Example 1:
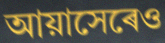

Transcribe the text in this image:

আয়াসেৰেও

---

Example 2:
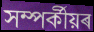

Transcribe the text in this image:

সম্পৰ্কীয়ৰ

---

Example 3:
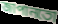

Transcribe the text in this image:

জাপানতো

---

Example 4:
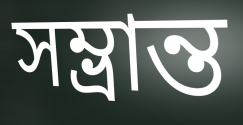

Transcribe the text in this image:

সম্ভ্ৰান্ত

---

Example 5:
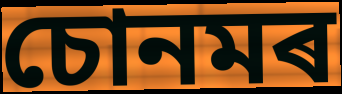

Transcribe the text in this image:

চোনমৰ